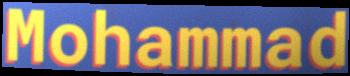
Mohammad